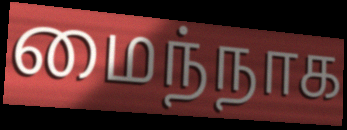
மைந்நாக